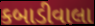
કબાડીવાલા